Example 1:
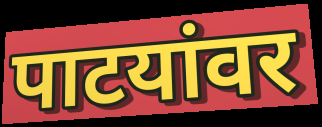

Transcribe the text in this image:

पाटयांवर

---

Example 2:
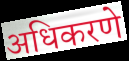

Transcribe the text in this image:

अधिकरणे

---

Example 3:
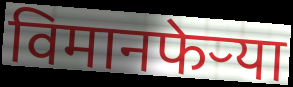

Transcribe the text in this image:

विमानफेऱ्या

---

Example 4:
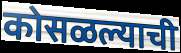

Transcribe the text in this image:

कोसळल्याची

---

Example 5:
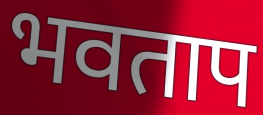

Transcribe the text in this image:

भवताप